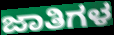
ಜಾತಿಗಳ